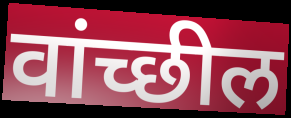
वांच्छील